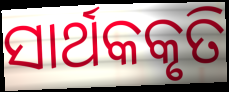
ସାର୍ଥକକୃତି